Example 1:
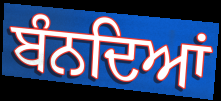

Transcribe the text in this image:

ਬੰਨਦਿਆਂ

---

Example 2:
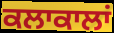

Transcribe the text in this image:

ਕਲਾਕਾਲਾਂ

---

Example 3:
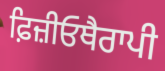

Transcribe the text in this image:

ਫ਼ਿਜ਼ੀਓਥੈਰਾਪੀ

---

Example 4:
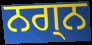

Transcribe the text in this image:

ਨਗ੍ਨ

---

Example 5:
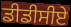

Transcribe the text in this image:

ਡੀਡੀਸੀਏ